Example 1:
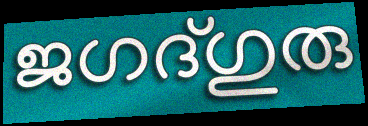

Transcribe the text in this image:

ജഗദ്ഗുരു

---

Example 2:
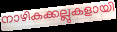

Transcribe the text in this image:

നാഴികക്കല്ലുകളായി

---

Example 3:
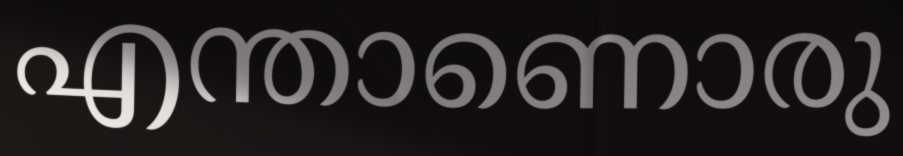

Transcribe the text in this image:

എന്താണൊരു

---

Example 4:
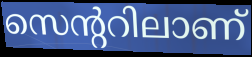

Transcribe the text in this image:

സെന്ററിലാണ്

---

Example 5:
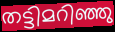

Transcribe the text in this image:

തട്ടിമറിഞ്ഞു